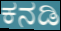
ಕನಡಿ